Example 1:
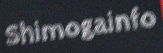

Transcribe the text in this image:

Shimogainfo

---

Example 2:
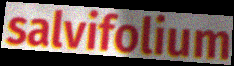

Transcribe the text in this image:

salvifolium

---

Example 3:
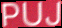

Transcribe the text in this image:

PUJ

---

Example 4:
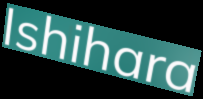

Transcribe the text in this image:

Ishihara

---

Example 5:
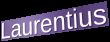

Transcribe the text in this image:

Laurentius